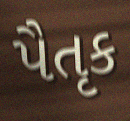
પૈતૃક